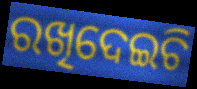
ରଖିଦେଇଚି